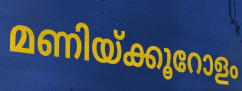
മണിയ്ക്കൂറോളം